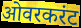
ओवरकरंट